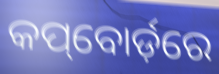
କପ୍‌ବୋର୍ଡ଼ରେ